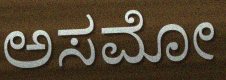
ಅಸಮೋ